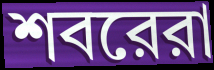
শবরেরা